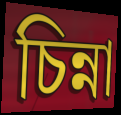
চিন্না